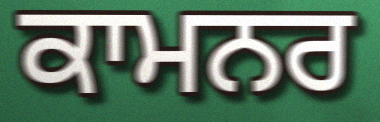
ਕਾਮਨਰ